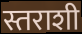
स्तराशी